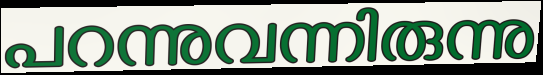
പറന്നുവന്നിരുന്നു